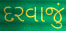
દરવાજું